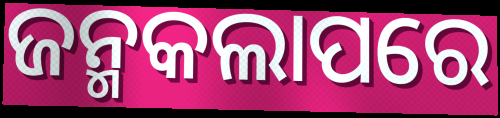
ଜନ୍ମକଲାପରେ